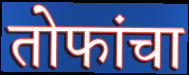
तोफांचा